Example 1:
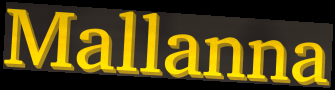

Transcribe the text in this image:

Mallanna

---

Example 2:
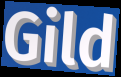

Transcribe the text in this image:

Gild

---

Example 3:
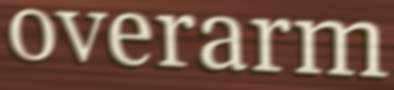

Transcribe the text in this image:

overarm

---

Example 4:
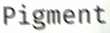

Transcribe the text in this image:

Pigment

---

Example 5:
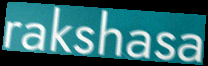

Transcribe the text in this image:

rakshasa